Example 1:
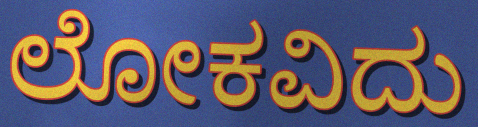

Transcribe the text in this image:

ಲೋಕವಿದು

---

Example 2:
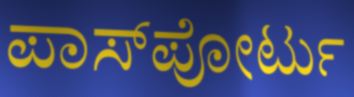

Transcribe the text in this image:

ಪಾಸ್‌ಪೋರ್ಟು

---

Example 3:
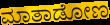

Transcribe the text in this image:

ಮಾತಾಡೋಣ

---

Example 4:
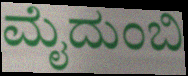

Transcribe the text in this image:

ಮೈದುಂಬಿ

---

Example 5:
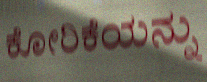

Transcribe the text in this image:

ಕೋರಿಕೆಯನ್ನು